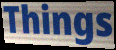
Things